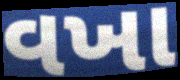
વખા